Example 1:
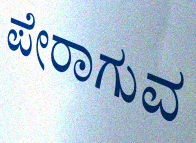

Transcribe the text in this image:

ಪೇರಾಗುವ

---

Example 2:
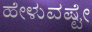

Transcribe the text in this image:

ಹೇಳುವಷ್ಟೇ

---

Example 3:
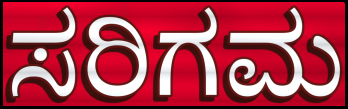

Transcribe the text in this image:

ಸರಿಗಮ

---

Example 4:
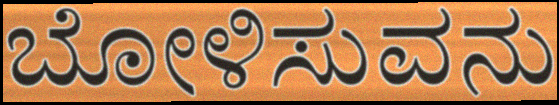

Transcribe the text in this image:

ಬೋಳಿಸುವನು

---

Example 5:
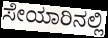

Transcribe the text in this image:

ಸೇಯಾರಿನಲ್ಲಿ